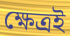
ক্ষেত্ৰই